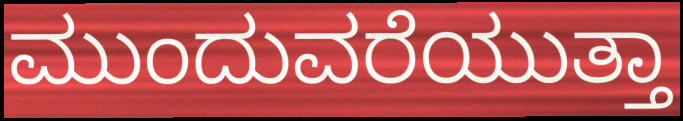
ಮುಂದುವರೆಯುತ್ತಾ